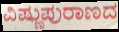
ವಿಷ್ಣುಪುರಾಣದ